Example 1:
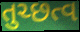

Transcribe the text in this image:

તુચ્છત્વ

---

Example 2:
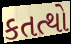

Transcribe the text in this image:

કતત્થો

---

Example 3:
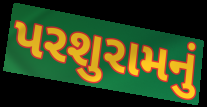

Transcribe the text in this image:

પરશુરામનું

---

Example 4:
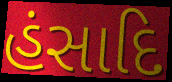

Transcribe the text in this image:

હંસાદિ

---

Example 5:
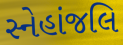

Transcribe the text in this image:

સ્નેહાંજલિ